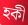
হকী